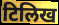
टिलिख